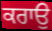
ਕਰਾਉ